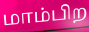
மாம்பிற